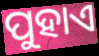
ପୁହାଏ